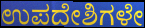
ಉಪದೇಶಿಗಳೇ